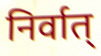
निर्वात्